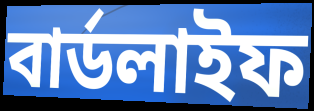
বার্ডলাইফ